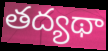
తద్యథా